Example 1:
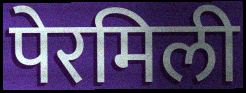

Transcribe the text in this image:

पेरमिली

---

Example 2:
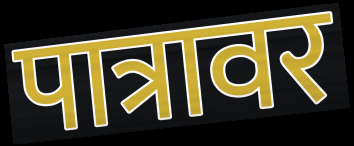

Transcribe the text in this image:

पात्रावर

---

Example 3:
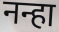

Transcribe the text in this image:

नन्हा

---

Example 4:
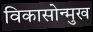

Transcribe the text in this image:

विकासोन्मुख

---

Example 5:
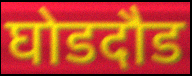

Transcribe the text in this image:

घोडदौड